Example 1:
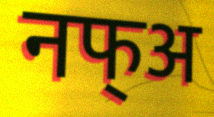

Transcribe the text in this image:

नफ्अ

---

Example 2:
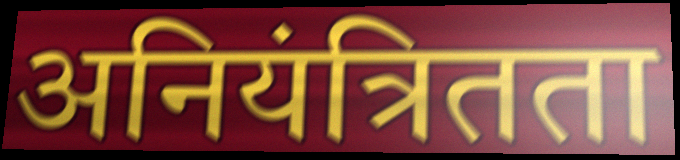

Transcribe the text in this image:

अनियंत्रितता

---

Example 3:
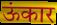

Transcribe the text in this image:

ऊंकार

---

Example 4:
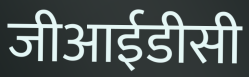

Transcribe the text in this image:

जीआईडीसी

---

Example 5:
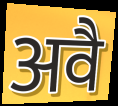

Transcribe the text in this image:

अवै